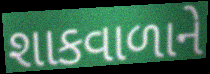
શાકવાળાને